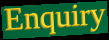
Enquiry